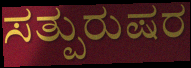
ಸತ್ಪುರುಷರ